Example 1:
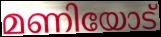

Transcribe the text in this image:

മണിയോട്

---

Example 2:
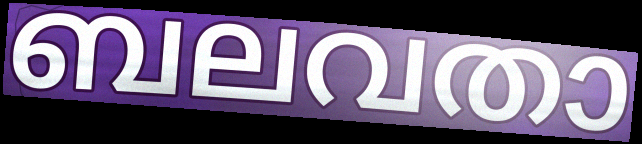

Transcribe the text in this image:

ബലവതാ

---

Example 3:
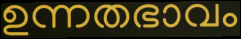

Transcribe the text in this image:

ഉന്നതഭാവം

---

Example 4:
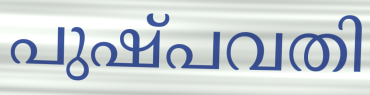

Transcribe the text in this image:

പുഷ്പവതി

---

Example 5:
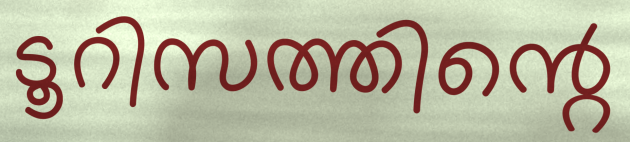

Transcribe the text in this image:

ടൂറിസത്തിന്റെ